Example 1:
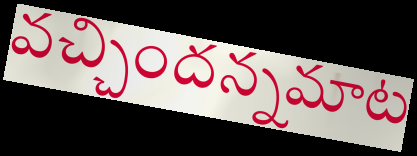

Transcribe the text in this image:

వచ్చిందన్నమాట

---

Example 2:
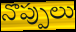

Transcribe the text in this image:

నొప్పులు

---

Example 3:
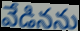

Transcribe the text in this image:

వేడినను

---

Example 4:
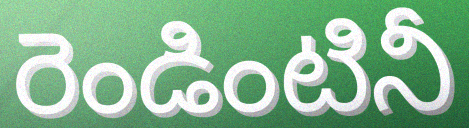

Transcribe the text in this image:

రెండింటినీ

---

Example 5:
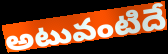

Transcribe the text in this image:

అటువంటిదే